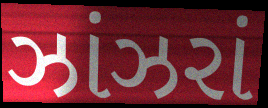
ઝાંઝરાં